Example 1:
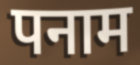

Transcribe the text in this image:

पनाम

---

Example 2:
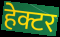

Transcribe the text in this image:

हेक्टर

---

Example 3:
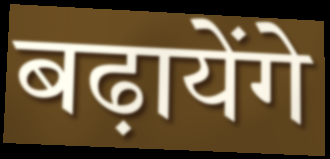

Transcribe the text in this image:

बढ़ायेंगे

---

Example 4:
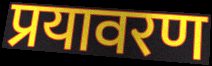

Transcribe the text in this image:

प्रयावरण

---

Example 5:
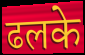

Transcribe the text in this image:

ढलके